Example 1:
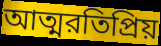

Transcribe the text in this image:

আত্মরতিপ্রিয়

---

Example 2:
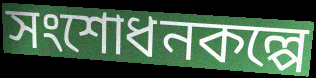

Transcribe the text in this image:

সংশোধনকল্পে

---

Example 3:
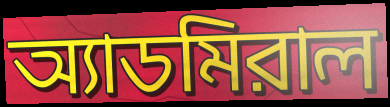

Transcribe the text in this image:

অ্যাডমিরাল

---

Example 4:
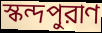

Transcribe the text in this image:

স্কন্দপুরাণ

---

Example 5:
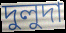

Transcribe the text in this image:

দুলুদা